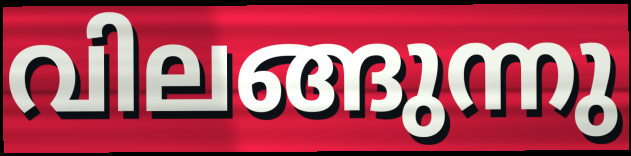
വിലങ്ങുന്നു